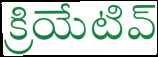
క్రియేటివ్